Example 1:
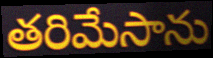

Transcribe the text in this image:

తరిమేసాను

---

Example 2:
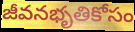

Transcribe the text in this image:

జీవనభృతికోసం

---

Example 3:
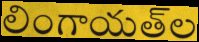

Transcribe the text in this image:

లింగాయత్‌ల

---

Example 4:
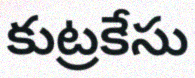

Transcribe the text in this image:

కుట్రకేసు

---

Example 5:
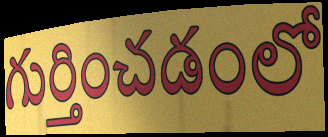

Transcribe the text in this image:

గుర్తించడంలో